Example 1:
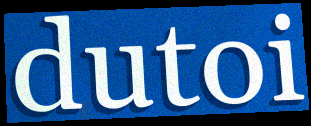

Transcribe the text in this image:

dutoi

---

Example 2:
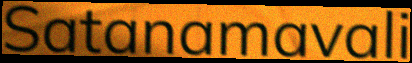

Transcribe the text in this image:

Satanamavali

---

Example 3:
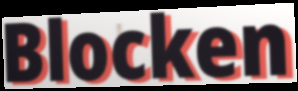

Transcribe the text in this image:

Blocken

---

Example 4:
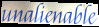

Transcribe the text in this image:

unalienable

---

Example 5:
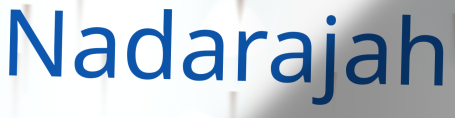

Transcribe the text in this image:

Nadarajah